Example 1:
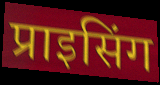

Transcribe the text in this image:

प्राइसिंग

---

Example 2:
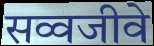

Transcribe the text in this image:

सव्वजीवे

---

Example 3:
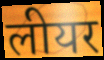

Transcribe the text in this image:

लीयर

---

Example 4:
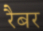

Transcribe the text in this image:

रैबर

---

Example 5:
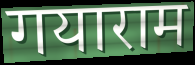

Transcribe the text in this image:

गयाराम